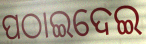
ପଠାଇଦେଇ